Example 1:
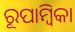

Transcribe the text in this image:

ରୂପାମ୍ୱିକା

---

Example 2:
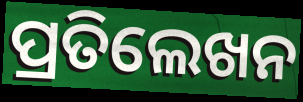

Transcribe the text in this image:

ପ୍ରତିଲେଖନ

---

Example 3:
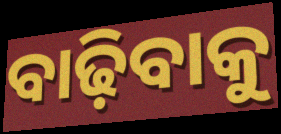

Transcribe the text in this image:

ବାଢ଼ିବାକୁ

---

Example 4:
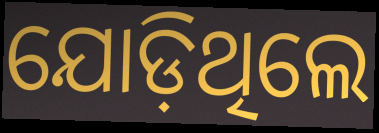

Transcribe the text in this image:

ଯୋଡ଼ିଥିଲେ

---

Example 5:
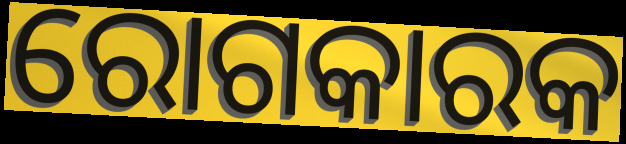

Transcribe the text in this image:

ରୋଗକାରକ